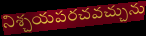
నిశ్చయపరచవచ్చును